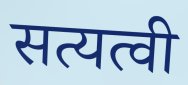
सत्यत्वी